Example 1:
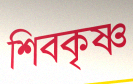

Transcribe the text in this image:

শিবকৃষ্ণ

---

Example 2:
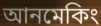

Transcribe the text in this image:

আনমেকিং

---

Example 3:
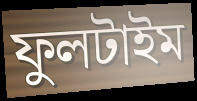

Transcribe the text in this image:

ফুলটাইম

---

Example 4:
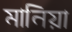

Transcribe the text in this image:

মানিয়া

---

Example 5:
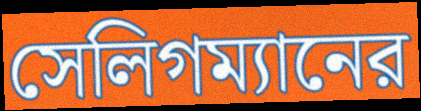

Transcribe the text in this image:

সেলিগম্যানের